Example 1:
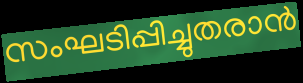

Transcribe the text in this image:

സംഘടിപ്പിച്ചുതരാൻ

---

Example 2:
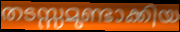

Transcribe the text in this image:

തടസ്സമുണ്ടാക്കിയ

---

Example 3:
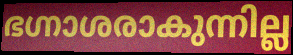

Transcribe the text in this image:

ഭഗ്നാശരാകുന്നില്ല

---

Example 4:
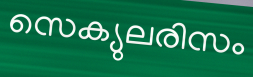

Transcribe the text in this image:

സെക്യുലരിസം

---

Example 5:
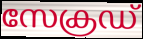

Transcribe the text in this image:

സേക്രഡ്